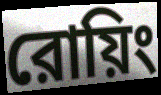
রোয়িং